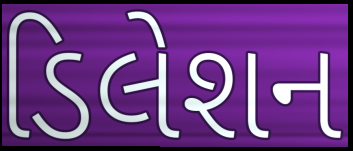
ડિલેશન